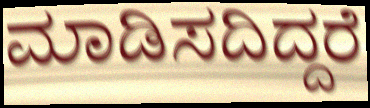
ಮಾಡಿಸದಿದ್ದರೆ